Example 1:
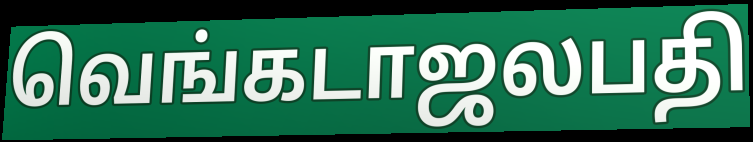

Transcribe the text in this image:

வெங்கடாஜலபதி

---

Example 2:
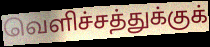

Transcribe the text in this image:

வெளிச்சத்துக்குக்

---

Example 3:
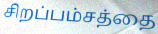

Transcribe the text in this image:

சிறப்பம்சத்தை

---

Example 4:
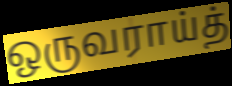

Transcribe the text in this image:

ஒருவராய்த்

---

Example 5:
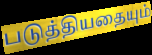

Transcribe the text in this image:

படுத்தியதையும்